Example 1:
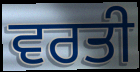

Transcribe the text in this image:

ਵਰਤੀ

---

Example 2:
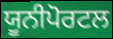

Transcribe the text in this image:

ਯੂਨੀਪੋਰਟਲ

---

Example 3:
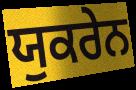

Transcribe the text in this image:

ਯੁਕਰੇਨ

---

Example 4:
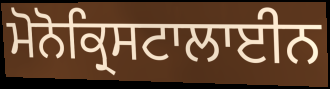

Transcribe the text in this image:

ਮੋਨੋਕ੍ਰਿਸਟਾਲਾਈਨ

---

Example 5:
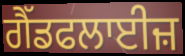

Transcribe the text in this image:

ਗੈੱਡਫਲਾਈਜ਼